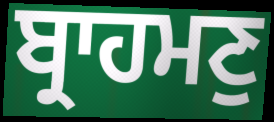
ਬ੍ਰਾਹਮਣੁ